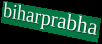
biharprabha